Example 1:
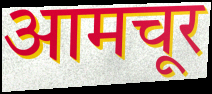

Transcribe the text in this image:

आमचूर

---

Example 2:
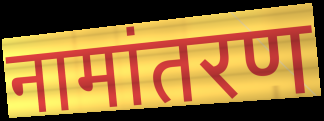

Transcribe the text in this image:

नामांतरण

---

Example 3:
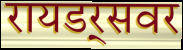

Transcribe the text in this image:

रायडर्सवर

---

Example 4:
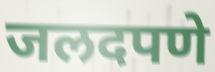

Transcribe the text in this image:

जलदपणे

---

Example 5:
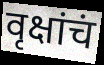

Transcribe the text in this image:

वृक्षांचं